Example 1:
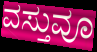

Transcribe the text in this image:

ವಸ್ತುವೂ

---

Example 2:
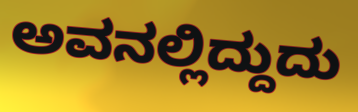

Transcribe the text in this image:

ಅವನಲ್ಲಿದ್ದುದು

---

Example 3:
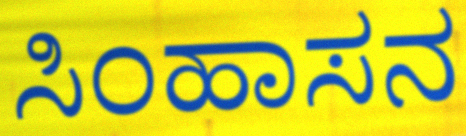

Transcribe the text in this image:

ಸಿಂಹಾಸನ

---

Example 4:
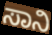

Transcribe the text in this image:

ಸಾನಿ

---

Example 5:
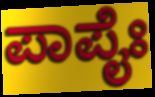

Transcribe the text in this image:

ಪಾಪೈಃ